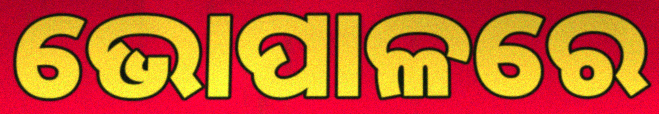
ଭୋପାଳରେ